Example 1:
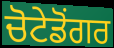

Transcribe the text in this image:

ਚੋਟੇਡੋਂਗਰ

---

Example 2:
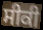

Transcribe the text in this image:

ਸੀਕੀ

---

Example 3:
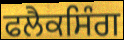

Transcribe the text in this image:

ਫਲੈਕਸਿੰਗ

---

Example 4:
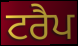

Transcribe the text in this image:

ਟਰੈਪ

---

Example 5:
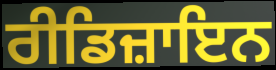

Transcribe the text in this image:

ਰੀਡਿਜ਼ਾਇਨ